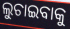
ଲୁଚାଇବାକୁ